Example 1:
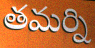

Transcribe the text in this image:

తమర్ని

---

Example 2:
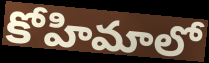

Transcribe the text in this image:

కోహిమాలో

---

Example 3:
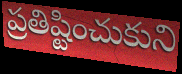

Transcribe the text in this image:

ప్రతిష్టించుకుని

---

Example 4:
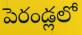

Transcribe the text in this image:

పెరండ్లలో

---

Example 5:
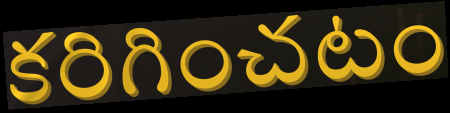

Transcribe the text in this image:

కరిగించటం